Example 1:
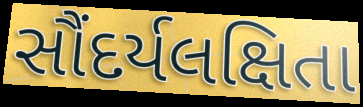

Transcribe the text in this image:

સૌંદર્યલક્ષિતા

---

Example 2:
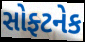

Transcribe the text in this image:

સોફ્ટનેક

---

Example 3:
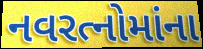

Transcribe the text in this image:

નવરત્નોમાંના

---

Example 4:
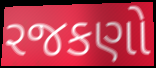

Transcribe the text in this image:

રજકણો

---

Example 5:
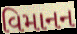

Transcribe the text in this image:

વિમાનન